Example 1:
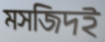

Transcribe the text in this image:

মসজিদই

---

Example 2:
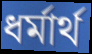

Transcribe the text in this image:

ধর্মার্থ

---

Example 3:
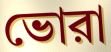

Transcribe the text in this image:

ভোরা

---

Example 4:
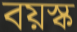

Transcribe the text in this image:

বয়স্ক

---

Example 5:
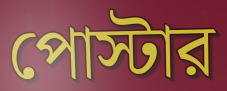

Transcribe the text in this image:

পোস্টার